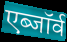
एब्जॉर्व